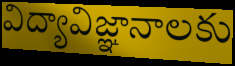
విద్యావిజ్ఞానాలకు